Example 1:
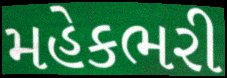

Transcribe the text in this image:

મહેકભરી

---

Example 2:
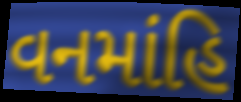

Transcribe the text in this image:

વનમાંહિ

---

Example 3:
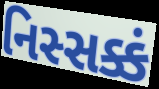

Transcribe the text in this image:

નિસ્સક્કં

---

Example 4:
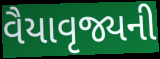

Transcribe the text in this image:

વૈયાવૃજ્યની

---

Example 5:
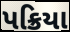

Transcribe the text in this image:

પક્રિયા